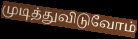
முடித்துவிடுவோம்